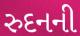
રુદનની